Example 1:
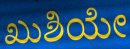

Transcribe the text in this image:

ಖುಶಿಯೇ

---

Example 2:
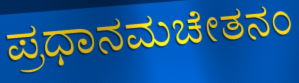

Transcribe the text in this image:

ಪ್ರಧಾನಮಚೇತನಂ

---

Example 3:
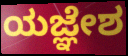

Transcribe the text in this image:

ಯಜ್ಞೇಶ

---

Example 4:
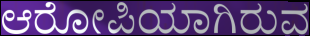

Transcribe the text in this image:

ಆರೋಪಿಯಾಗಿರುವ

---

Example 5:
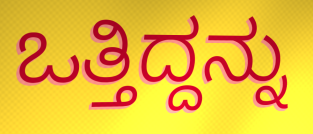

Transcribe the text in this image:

ಒತ್ತಿದ್ದನ್ನು